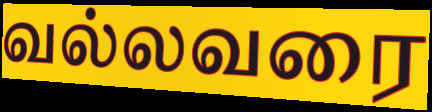
வல்லவரை